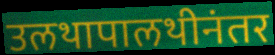
उलथापालथीनंतर